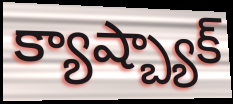
క్యాష్బ్యాక్